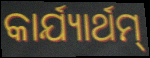
କାର୍ଯ୍ୟାର୍ଥମ୍